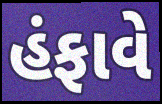
હંફાવે